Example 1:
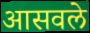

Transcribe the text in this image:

आसवले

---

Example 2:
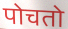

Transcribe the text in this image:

पोचतो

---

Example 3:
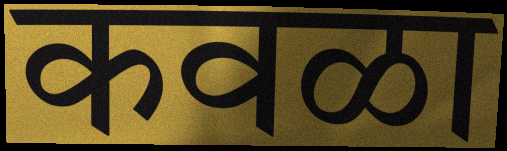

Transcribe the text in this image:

कवळा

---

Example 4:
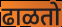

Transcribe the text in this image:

ढाळतो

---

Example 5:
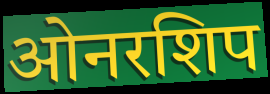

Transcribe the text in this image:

ओनरशिप